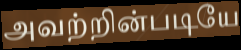
அவற்றின்படியே